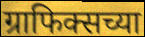
ग्राफिक्सच्या